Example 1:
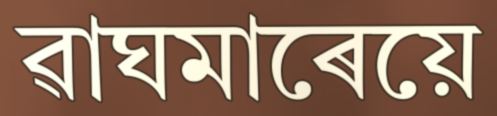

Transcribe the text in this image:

ৱাঘমাৰেয়ে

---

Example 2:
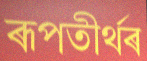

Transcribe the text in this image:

ৰূপতীৰ্থৰ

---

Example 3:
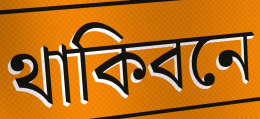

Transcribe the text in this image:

থাকিবনে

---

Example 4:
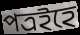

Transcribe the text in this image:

পত্ৰইহে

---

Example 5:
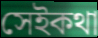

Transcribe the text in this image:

সেইকথা